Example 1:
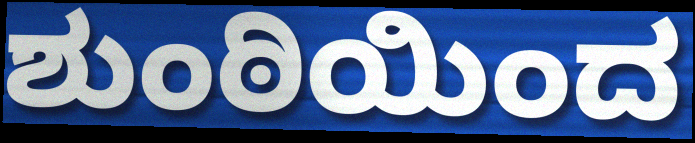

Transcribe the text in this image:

ಶುಂಠಿಯಿಂದ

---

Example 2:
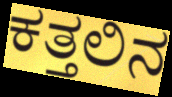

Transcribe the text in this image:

ಕತ್ತಲಿನ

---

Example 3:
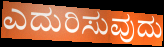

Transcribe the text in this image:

ಎದುರಿಸುವುದು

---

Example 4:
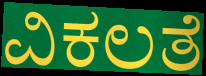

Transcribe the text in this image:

ವಿಕಲತೆ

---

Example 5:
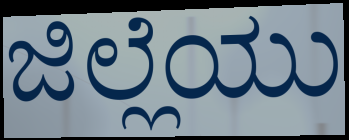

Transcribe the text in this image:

ಜಿಲ್ಲೆಯು